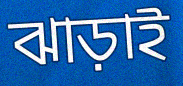
ঝাড়াই